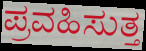
ಪ್ರವಹಿಸುತ್ತ